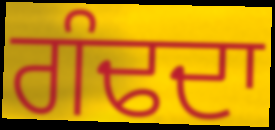
ਗੰਢਦਾ